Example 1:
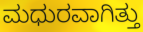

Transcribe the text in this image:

ಮಧುರವಾಗಿತ್ತು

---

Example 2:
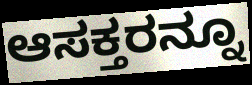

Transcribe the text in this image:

ಆಸಕ್ತರನ್ನೂ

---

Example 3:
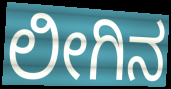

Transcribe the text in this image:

ಲೀಗಿನ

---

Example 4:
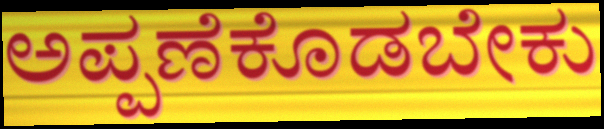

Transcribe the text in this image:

ಅಪ್ಪಣೆಕೊಡಬೇಕು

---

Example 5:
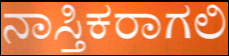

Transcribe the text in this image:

ನಾಸ್ತಿಕರಾಗಲಿ